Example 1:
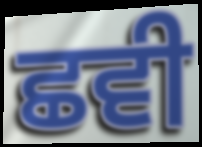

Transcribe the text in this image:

ਛਵੀ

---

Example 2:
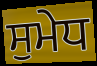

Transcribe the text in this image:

ਸੁਮੇਧ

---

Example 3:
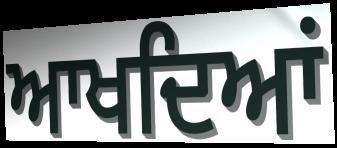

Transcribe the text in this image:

ਆਖਦਿਆਂ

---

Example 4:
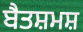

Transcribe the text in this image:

ਬੈਤਸ਼ਮਸ਼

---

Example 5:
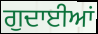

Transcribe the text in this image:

ਗੁਦਾਈਆਂ